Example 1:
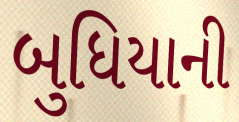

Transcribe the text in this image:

બુધિયાની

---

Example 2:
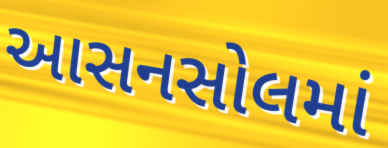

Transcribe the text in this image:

આસનસોલમાં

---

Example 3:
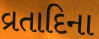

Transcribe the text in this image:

વ્રતાદિના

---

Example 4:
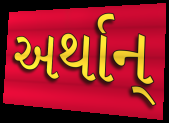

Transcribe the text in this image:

અર્થાન્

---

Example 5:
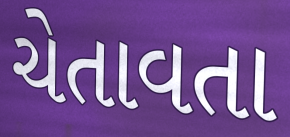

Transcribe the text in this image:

ચેતાવતા